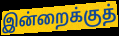
இன்றைக்குத்